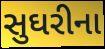
સુઘરીના